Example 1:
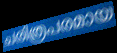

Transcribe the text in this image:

ചരിത്രപരമായ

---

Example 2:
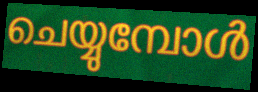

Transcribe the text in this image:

ചെയ്യുമ്പോൾ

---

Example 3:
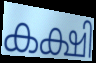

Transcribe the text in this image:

കക്ഷി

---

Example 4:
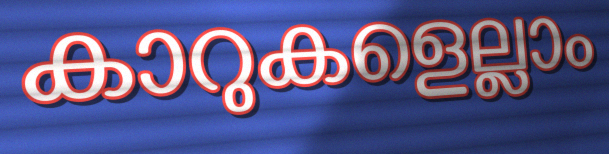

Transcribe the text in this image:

കാറുകളെല്ലാം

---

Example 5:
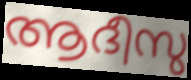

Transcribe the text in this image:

ആദീസു